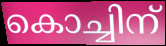
കൊച്ചിന്